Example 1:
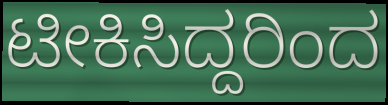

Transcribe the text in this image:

ಟೀಕಿಸಿದ್ದರಿಂದ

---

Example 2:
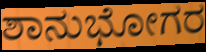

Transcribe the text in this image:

ಶಾನುಭೋಗರ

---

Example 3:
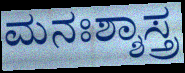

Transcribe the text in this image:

ಮನಃಶ್ಶಾಸ್ತ್ರ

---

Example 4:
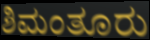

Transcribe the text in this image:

ಶಿಮಂತೂರು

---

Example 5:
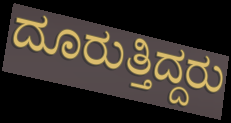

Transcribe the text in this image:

ದೂರುತ್ತಿದ್ದರು